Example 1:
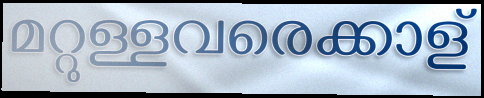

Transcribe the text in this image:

മറ്റുള്ളവരെക്കാള്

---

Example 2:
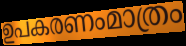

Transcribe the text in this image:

ഉപകരണംമാത്രം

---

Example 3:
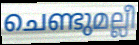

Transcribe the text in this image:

ചെണ്ടുമല്ലീ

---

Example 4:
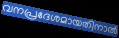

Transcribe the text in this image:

വനപ്രദേശമായതിനാൽ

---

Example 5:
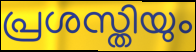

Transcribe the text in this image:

പ്രശസ്തിയും